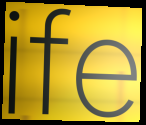
ife